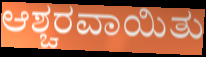
ಆಶ್ಚರವಾಯಿತು